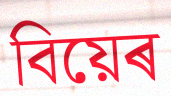
বিয়েৰ